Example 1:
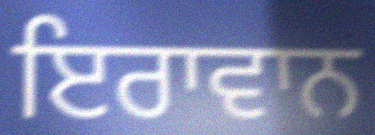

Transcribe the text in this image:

ਇਰਾਵਾਨ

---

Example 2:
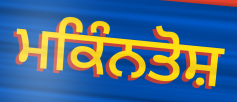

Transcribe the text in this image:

ਮਕਿੰਨਤੋਸ਼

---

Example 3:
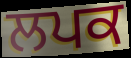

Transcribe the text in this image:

ਲਪਕ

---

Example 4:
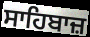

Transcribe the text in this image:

ਸਾਹਿਬਾਜ਼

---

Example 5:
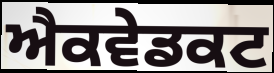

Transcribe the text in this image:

ਐਕਵੇਡਕਟ